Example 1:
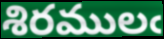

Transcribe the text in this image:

శిరములఁ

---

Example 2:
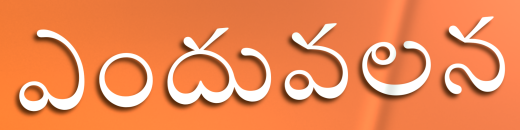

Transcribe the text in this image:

ఎందువలన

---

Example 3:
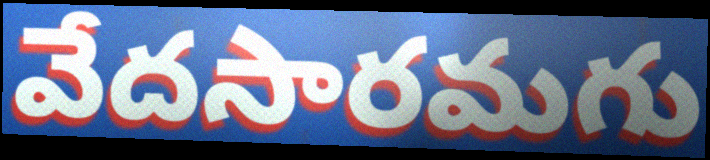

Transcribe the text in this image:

వేదసారమగు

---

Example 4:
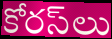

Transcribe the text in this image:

కోరస్‌లు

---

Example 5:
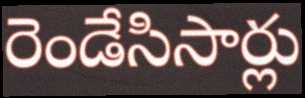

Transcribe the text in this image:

రెండేసిసార్లు